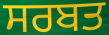
ਸਰਬਤ